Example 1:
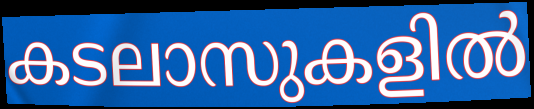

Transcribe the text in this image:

കടലാസുകളിൽ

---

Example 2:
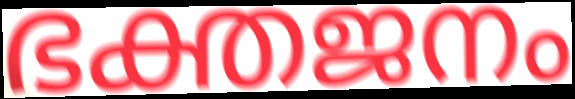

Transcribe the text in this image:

ഭക്തജനം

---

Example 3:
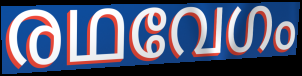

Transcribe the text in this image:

രഥവേഗം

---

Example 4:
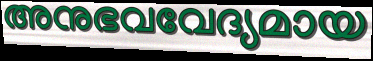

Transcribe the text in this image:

അനുഭവവേദ്യമായ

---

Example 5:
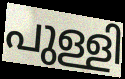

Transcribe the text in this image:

പുള്ളി